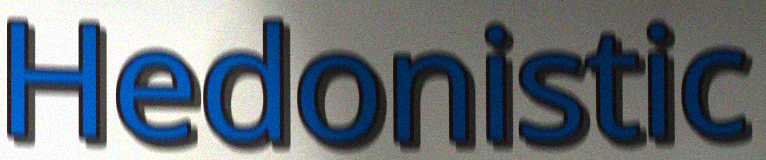
Hedonistic